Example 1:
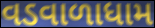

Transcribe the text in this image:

વડવાળાધામ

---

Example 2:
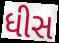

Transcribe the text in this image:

ધીસ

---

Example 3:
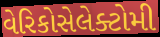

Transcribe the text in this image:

વેરિકોસેલેક્ટોમી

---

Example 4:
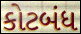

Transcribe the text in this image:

કોટબંધ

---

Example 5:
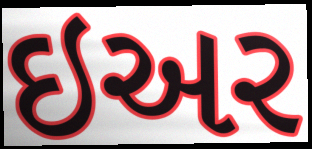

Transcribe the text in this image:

ઇઅર